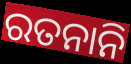
ରତନାନି